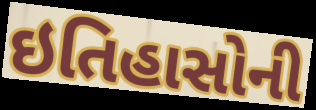
ઇતિહાસોની